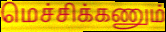
மெச்சிக்கணும்